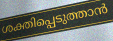
ശക്തിപ്പെടുത്താൻ